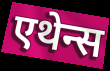
एथेन्स